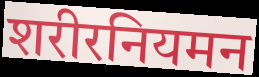
शरीरनियमन